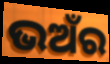
ଭଅଁର